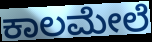
ಕಾಲಮೇಲೆ